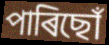
পাৰিছোঁ